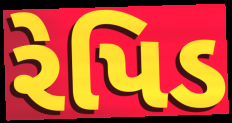
રેપિડ